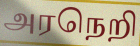
அரநெறி